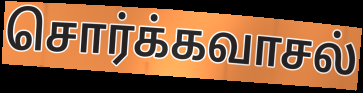
சொர்க்கவாசல்